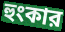
হুংকার